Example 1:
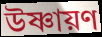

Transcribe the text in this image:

উষ্ণায়ণ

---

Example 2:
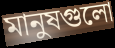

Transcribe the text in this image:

মানুষগুলো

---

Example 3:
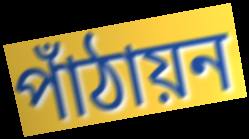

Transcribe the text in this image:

পাঁঠায়ন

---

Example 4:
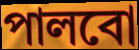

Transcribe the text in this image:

পালবো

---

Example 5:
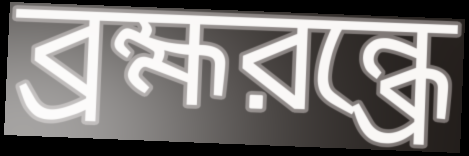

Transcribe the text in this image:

ব্রহ্মরন্ধ্রে